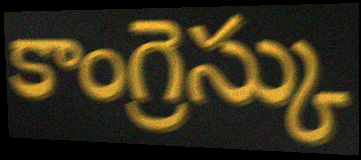
కాంగ్రెస్కు